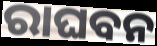
ରାଘବନ